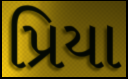
પ્રિયા